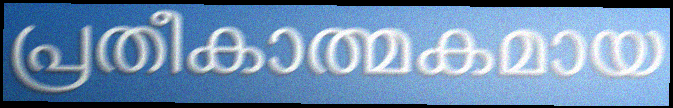
പ്രതീകാത്മകമായ